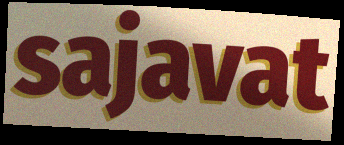
sajavat